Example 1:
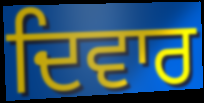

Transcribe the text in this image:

ਦਿਵਾਰ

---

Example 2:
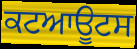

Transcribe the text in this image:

ਕਟਆਊਟਸ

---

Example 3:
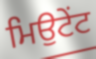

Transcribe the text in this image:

ਮਿਉਟੇਂਟ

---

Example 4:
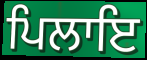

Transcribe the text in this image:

ਪਿਲਾਇ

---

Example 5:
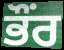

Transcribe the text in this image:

ਭੌਂਰ